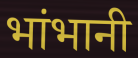
भांभानी